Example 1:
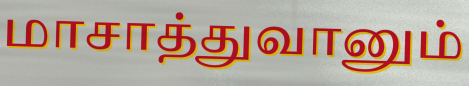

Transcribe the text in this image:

மாசாத்துவானும்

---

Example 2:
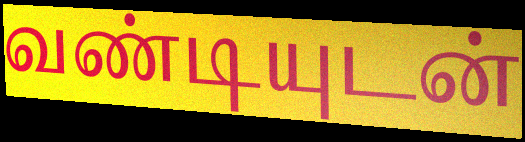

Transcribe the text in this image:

வண்டியுடன்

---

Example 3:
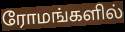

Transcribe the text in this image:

ரோமங்களில்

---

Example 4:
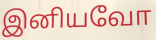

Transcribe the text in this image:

இனியவோ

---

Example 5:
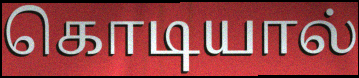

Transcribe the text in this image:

கொடியால்